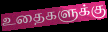
உதைகளுக்கு